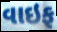
વાઇફ